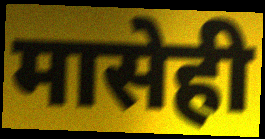
मासेही